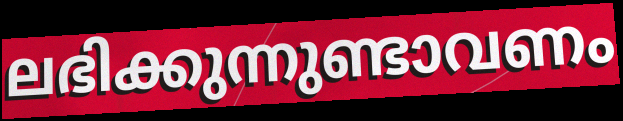
ലഭിക്കുന്നുണ്ടാവണം